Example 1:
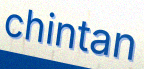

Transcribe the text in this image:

chintan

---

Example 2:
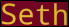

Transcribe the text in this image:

Seth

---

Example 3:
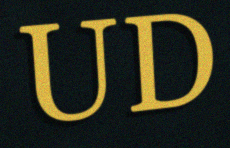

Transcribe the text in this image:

UD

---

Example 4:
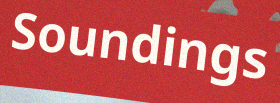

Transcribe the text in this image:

Soundings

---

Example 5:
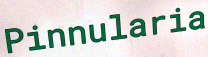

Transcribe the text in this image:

Pinnularia